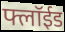
फ्लॉईड